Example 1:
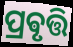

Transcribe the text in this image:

ପ୍ରଵୃତ୍ତି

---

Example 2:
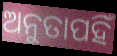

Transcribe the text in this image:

ଅନୁତାପହିଁ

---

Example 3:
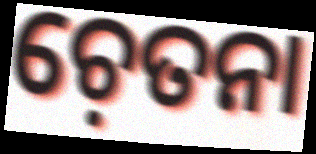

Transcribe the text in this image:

ଚ଼େତନା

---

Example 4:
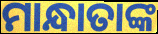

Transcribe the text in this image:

ମାନ୍ଧାତାଙ୍କ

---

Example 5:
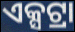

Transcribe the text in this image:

ଏକ୍ସଟ୍ରା